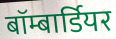
बॉम्बार्डियर